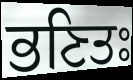
ਭਣਿਤਃ